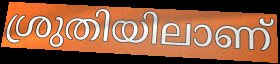
ശ്രുതിയിലാണ്